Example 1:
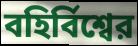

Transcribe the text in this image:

বহির্বিশ্বের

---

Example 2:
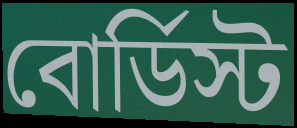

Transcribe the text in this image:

বোর্ডিস্ট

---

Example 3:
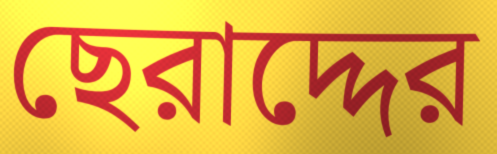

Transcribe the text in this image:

ছেরাদ্দের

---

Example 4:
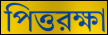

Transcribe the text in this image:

পিত্তরক্ষা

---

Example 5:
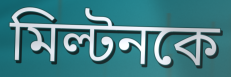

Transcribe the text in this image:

মিল্টনকে